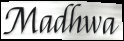
Madhwa